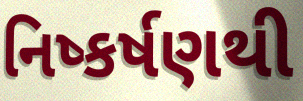
નિષ્કર્ષણથી